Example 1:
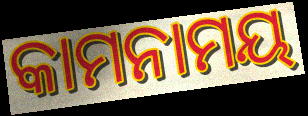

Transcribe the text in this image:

କାମନାମୟ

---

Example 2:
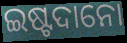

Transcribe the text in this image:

ଇଷ୍ଟଦାନୋ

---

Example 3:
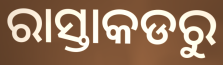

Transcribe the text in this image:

ରାସ୍ତାକଡରୁ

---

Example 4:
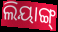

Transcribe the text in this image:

ଲିୟାଙ୍ଗ୍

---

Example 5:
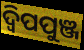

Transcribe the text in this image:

ଦ୍ଵିପପୁଞ୍ଜ